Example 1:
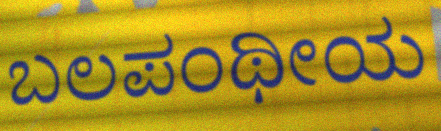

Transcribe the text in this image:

ಬಲಪಂಥೀಯ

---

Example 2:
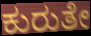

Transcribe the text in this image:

ಕುರುತೇ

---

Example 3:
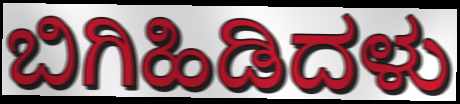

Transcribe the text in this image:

ಬಿಗಿಹಿಡಿದಳು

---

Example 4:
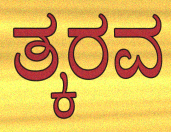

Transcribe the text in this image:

ತ್ಕರವ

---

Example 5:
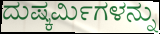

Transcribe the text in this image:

ದುಷ್ಕರ್ಮಿಗಳನ್ನು